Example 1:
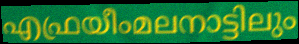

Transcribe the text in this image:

എഫ്രയീംമലനാട്ടിലും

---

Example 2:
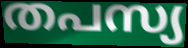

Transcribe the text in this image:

തപസ്യ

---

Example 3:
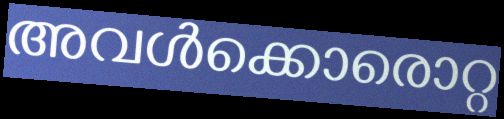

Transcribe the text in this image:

അവൾക്കൊരൊറ്റ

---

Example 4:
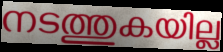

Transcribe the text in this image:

നടത്തുകയില്ല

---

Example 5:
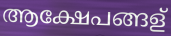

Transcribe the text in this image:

ആക്ഷേപങ്ങള്